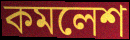
কমলেশ